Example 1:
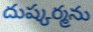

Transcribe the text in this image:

దుష్కర్మను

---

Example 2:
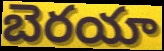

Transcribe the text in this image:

బెరయా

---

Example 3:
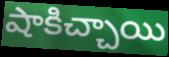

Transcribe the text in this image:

షాకిచ్చాయి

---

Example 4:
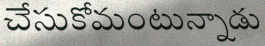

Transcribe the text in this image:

చేసుకోమంటున్నాడు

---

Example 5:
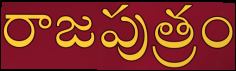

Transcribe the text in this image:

రాజపుత్రం